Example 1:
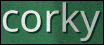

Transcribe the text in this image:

corky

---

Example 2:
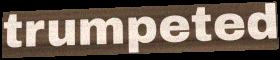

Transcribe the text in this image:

trumpeted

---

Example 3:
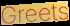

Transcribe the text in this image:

Greets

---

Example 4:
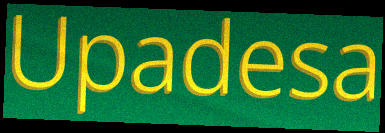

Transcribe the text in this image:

Upadesa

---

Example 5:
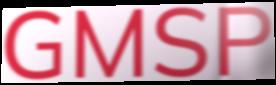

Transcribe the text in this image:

GMSP